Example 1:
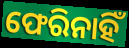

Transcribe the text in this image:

ଫେରିନାହିଁ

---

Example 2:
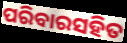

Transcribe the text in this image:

ପରିବାରସହିତ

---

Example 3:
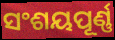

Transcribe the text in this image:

ସଂଶୟପୂର୍ଣ୍ଣ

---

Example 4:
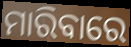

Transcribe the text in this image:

ମାରିବାରେ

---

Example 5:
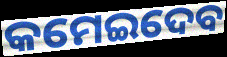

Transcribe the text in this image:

କମେଇଦେବ